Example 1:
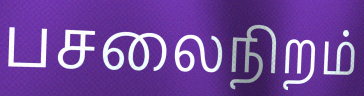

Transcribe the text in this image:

பசலைநிறம்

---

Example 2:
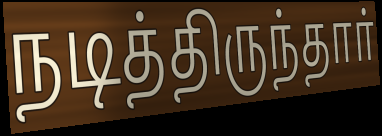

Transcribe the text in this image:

நடித்திருந்தார்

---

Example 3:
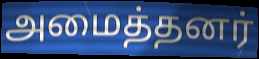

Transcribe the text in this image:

அமைத்தனர்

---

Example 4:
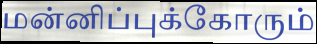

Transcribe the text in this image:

மன்னிப்புக்கோரும்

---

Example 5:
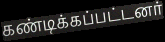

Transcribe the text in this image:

கண்டிக்கப்பட்டனர்